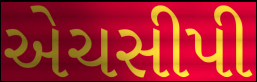
એચસીપી